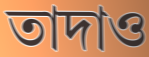
তাদাও